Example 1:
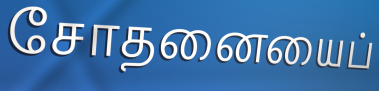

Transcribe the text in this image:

சோதனையைப்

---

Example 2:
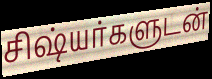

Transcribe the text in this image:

சிஷ்யர்களுடன்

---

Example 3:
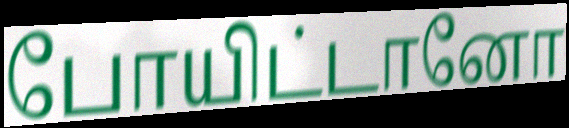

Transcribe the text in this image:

போயிட்டானோ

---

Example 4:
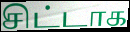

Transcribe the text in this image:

சிட்டாக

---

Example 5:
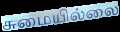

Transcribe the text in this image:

சுமையில்லை